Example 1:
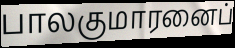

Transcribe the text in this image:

பாலகுமாரனைப்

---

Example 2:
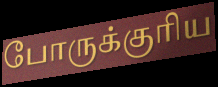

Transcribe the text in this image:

போருக்குரிய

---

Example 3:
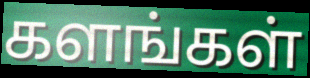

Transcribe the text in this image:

களங்கள்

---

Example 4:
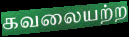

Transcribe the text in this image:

கவலையற்ற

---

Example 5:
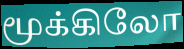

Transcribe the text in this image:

மூக்கிலோ